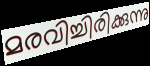
മരവിച്ചിരിക്കുന്നു